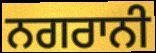
ਨਗਰਾਨੀ